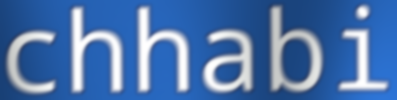
chhabi